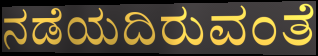
ನಡೆಯದಿರುವಂತೆ